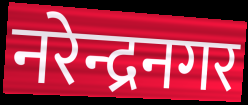
नरेन्द्रनगर